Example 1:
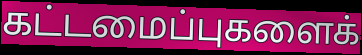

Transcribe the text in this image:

கட்டமைப்புகளைக்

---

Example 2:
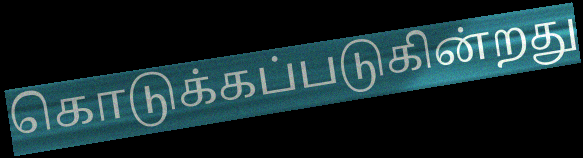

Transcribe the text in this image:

கொடுக்கப்படுகின்றது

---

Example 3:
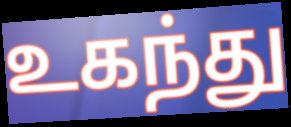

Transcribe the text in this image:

உகந்து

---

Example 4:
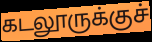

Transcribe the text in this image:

கடலூருக்குச்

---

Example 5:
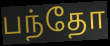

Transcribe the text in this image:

பந்தோ